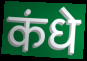
कंधे